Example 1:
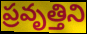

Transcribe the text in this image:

ప్రవృత్తిని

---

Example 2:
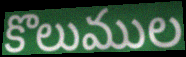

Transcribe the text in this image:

కొలుముల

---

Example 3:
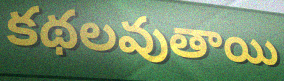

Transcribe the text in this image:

కథలవుతాయి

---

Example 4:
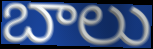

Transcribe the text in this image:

బాలు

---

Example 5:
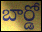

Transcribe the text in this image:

బార్డో